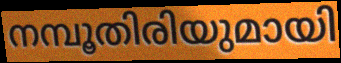
നമ്പൂതിരിയുമായി